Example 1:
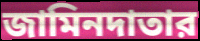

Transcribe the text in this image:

জামিনদাতার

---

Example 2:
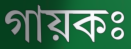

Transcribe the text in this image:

গায়কঃ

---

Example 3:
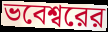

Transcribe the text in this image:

ভবেশ্বরের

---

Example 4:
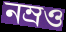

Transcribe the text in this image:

নম্রও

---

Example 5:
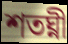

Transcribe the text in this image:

শতঘ্নী